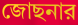
জোছনার